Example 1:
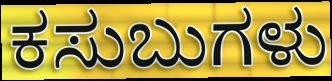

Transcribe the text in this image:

ಕಸುಬುಗಳು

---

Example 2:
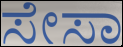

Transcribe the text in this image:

ಸೇಸಾ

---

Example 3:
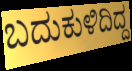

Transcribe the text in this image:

ಬದುಕುಳಿದಿದ್ದ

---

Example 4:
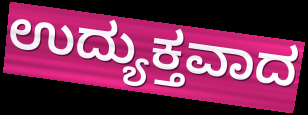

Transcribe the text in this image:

ಉದ್ಯುಕ್ತವಾದ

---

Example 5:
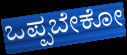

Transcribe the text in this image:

ಒಪ್ಪಬೇಕೋ